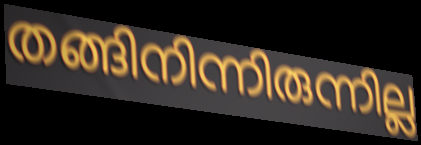
തങ്ങിനിന്നിരുന്നില്ല